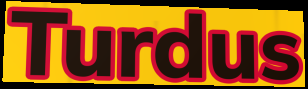
Turdus